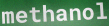
methanol